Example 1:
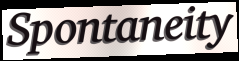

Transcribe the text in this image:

Spontaneity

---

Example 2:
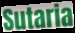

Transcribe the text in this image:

Sutaria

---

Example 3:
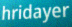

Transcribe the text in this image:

hridayer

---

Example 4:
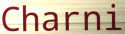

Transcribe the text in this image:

Charni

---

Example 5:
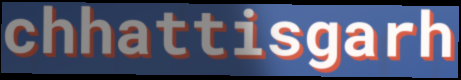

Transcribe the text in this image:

chhattisgarh